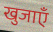
खुजाएँ